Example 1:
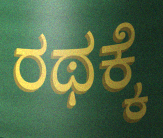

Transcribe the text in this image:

ರಥಕ್ಕೆ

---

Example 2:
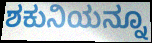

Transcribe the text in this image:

ಶಕುನಿಯನ್ನೂ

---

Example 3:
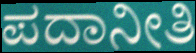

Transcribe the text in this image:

ಪದಾನೀತಿ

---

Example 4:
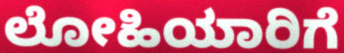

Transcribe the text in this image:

ಲೋಹಿಯಾರಿಗೆ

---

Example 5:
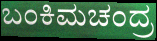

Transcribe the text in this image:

ಬಂಕಿಮಚಂದ್ರ